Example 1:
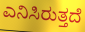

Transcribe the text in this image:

ಎನಿಸಿರುತ್ತದೆ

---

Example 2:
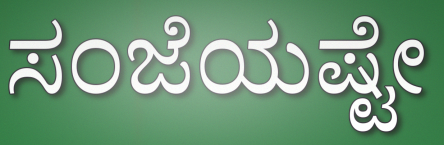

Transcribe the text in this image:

ಸಂಜೆಯಷ್ಟೇ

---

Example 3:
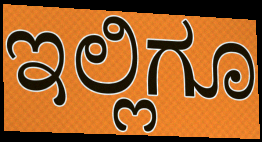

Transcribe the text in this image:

ಇಲ್ಲಿಗೂ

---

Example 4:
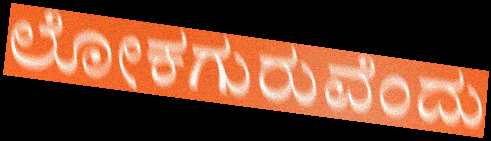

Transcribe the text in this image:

ಲೋಕಗುರುವೆಂದು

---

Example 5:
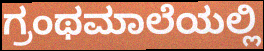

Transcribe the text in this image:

ಗ್ರಂಥಮಾಲೆಯಲ್ಲಿ